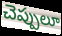
చెప్పులూ